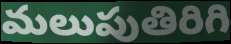
మలుపుతిరిగి